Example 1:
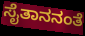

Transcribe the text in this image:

ಸೈತಾನನಂತೆ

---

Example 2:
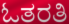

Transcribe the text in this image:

ಓತರತಿ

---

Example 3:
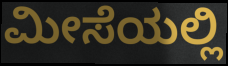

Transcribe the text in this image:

ಮೀಸೆಯಲ್ಲಿ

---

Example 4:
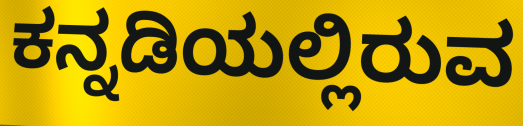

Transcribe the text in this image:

ಕನ್ನಡಿಯಲ್ಲಿರುವ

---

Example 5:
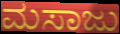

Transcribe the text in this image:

ಮಸಾಜು